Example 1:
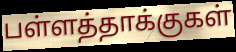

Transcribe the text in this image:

பள்ளத்தாக்குகள்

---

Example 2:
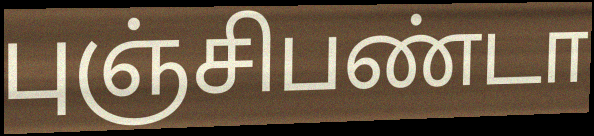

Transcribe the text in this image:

புஞ்சிபண்டா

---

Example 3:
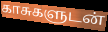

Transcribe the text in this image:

காசுகளுடன்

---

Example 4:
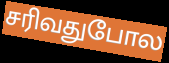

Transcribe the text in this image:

சரிவதுபோல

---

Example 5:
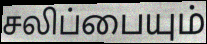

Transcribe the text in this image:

சலிப்பையும்